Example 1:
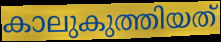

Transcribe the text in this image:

കാലുകുത്തിയത്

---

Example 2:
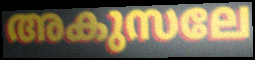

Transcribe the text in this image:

അകുസലേ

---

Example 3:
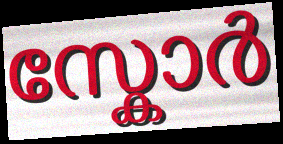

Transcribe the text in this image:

സ്കോർ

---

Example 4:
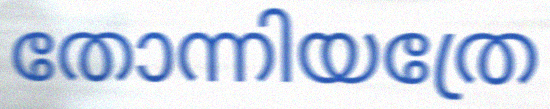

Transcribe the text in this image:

തോന്നിയത്രേ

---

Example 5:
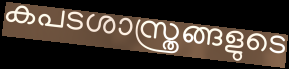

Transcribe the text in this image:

കപടശാസ്ത്രങ്ങളുടെ